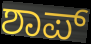
ಶಾಪ್